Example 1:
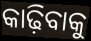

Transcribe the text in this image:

କାଢ଼ିବାକୁ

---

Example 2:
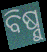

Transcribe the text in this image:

ବିଷ୍ନୁ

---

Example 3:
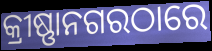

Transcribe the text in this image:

କ୍ରୀଷ୍ଣାନଗରଠାରେ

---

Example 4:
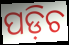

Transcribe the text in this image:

ପଡ଼ିଚ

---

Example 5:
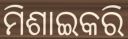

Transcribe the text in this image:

ମିଶାଇକରି